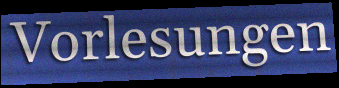
Vorlesungen